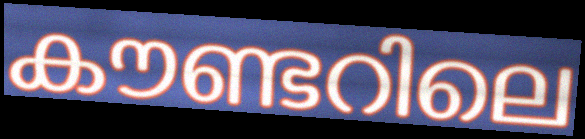
കൗണ്ടറിലെ